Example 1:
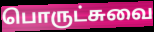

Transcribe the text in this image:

பொருட்சுவை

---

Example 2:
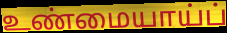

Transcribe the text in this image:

உண்மையாய்ப்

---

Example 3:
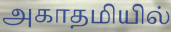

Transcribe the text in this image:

அகாதமியில்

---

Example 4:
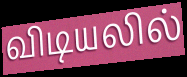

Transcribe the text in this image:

விடியலில்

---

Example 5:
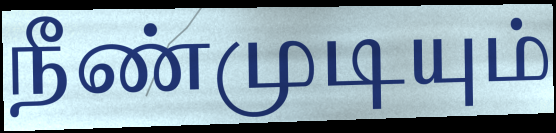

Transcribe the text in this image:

நீண்முடியும்